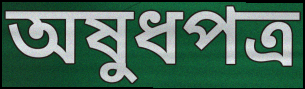
অষুধপত্র